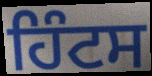
ਹਿੰਟਸ